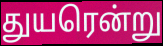
துயரென்று